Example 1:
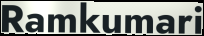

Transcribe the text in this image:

Ramkumari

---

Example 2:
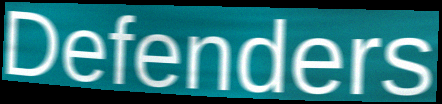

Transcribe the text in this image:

Defenders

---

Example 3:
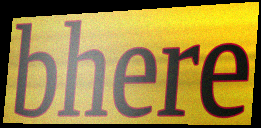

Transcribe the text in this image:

bhere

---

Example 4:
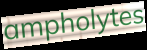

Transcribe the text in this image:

ampholytes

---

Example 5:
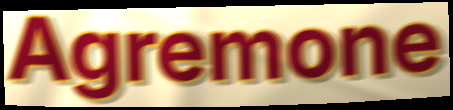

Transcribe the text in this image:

Agremone